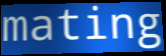
mating